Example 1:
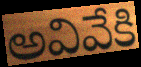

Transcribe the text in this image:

అవివేకి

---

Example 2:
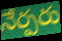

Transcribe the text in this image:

నేర్పరు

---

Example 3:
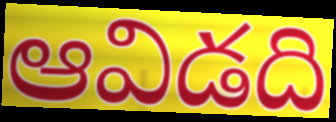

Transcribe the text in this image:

ఆవిడది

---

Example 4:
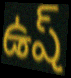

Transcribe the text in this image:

ఉష్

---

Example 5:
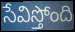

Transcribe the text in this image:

సేవిస్తోంది